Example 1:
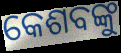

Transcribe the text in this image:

କେଶବଙ୍କୁ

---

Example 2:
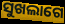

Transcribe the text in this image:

ସୁଖଲାଗେ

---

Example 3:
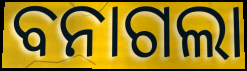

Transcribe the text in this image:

ବନାଗଲା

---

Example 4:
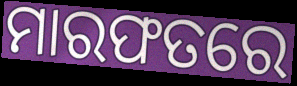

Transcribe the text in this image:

ମାରଫତରେ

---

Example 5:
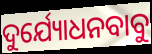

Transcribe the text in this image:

ଦୁର୍ଯ୍ୟୋଧନବାବୁ